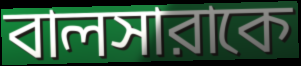
বালসারাকে